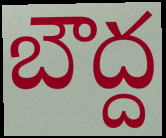
బౌద్ద